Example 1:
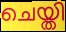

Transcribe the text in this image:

ചെയ്തി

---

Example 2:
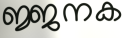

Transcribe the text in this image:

ജ്ജനക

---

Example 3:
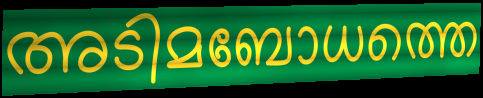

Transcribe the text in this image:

അടിമബോധത്തെ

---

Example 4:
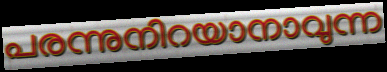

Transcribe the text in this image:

പരന്നുനിറയാനാവുന്ന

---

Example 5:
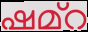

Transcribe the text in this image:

ഷമ്റ